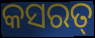
କସରତ୍